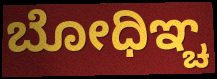
ಬೋಧಿಞ್ಚ